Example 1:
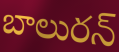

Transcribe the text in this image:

బాలురన్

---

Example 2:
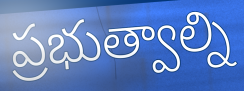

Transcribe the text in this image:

ప్రభుత్వాల్ని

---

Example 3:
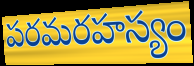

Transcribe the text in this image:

పరమరహస్యం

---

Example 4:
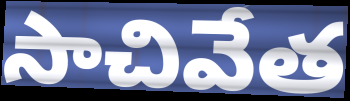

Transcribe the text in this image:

సాచివేత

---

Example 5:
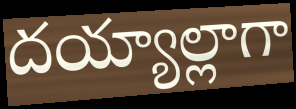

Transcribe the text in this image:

దయ్యాల్లాగా